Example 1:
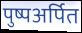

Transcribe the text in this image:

पुष्पअर्पित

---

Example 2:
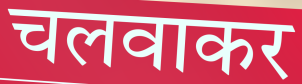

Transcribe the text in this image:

चलवाकर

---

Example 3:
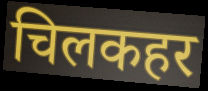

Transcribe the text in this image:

चिलकहर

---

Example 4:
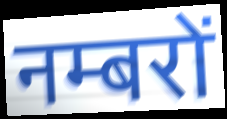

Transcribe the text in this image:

नम्बरों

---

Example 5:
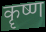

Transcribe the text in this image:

कॄष्ण